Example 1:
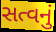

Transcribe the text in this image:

સત્વનું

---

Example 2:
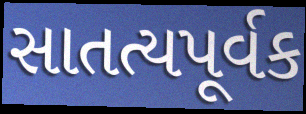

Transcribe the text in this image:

સાતત્યપૂર્વક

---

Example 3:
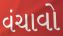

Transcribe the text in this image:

વંચાવો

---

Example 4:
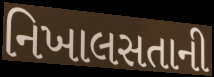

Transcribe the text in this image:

નિખાલસતાની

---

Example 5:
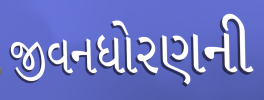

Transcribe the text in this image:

જીવનધોરણની